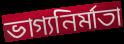
ভাগ্যনির্মাতা